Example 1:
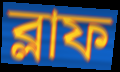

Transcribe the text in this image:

ব্লাফ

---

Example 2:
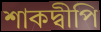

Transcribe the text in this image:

শাকদ্বীপি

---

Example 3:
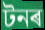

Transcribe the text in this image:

টনৰ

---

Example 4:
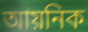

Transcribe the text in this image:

আয়নিক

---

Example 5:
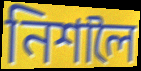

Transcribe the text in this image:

নিশালৈ